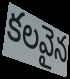
కలవైన